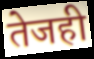
तेजही